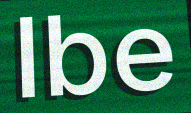
lbe